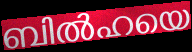
ബിൽഹയെ